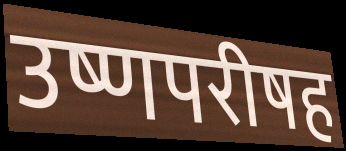
उष्णपरीषह